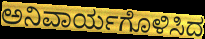
ಅನಿವಾರ್ಯಗೊಳಿಸಿದ